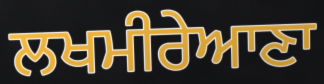
ਲਖਮੀਰੇਆਣਾ